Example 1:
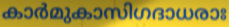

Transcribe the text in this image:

കാർമുകാസിഗദാധരാഃ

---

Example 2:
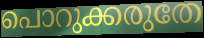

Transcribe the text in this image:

പൊറുക്കരുതേ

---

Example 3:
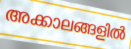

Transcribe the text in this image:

അക്കാലങ്ങളിൽ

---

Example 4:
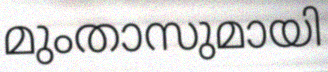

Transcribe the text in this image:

മുംതാസുമായി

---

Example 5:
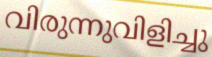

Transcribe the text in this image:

വിരുന്നുവിളിച്ചു